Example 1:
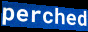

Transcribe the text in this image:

perched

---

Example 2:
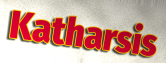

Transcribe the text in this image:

Katharsis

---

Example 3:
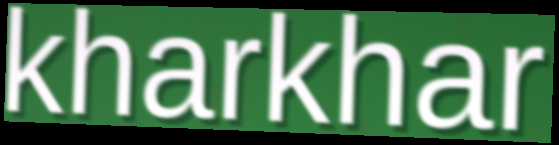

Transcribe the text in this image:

kharkhar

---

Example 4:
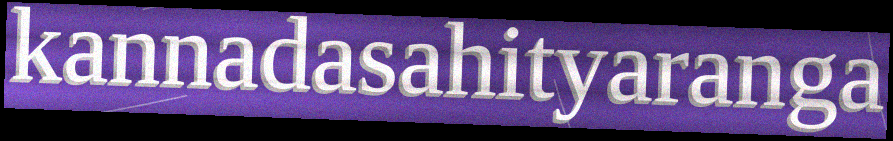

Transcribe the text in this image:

kannadasahityaranga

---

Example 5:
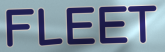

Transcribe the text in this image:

FLEET